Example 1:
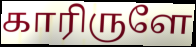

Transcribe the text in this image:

காரிருளே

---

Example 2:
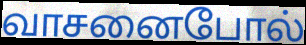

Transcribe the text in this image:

வாசனைபோல்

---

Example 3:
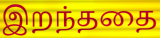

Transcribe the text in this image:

இறந்ததை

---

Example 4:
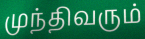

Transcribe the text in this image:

முந்திவரும்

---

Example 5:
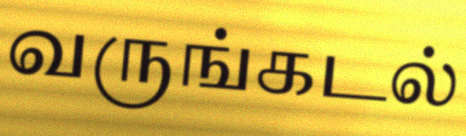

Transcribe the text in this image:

வருங்கடல்